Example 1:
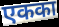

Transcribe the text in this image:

एकका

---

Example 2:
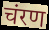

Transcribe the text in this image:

चंरण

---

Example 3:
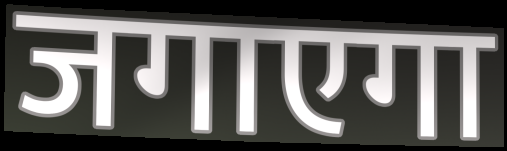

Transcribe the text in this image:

जगाएगा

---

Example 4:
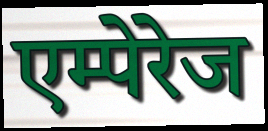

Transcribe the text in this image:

एम्पेरेज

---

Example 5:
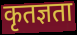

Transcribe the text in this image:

कृतज्ञता